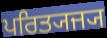
ਪਰਿਤ੍ਯਜ੍ਯ